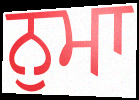
ਨੁਮਾ